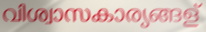
വിശ്വാസകാര്യങ്ങള്